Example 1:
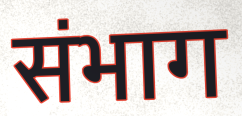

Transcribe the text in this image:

संभाग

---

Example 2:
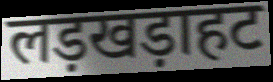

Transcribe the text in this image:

लड़खड़ाहट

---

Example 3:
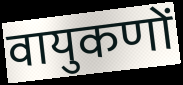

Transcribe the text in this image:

वायुकणों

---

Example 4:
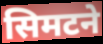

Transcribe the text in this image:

सिमटने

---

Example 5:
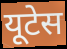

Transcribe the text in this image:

यूटेस